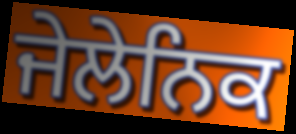
ਜੇਲੇਨਿਕ